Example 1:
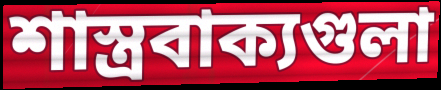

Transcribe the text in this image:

শাস্ত্রবাক্যগুলা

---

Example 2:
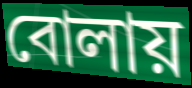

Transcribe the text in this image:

বোলায়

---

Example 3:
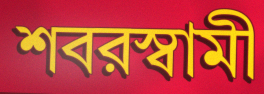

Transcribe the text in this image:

শবরস্বামী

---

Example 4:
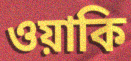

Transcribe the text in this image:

ওয়াকি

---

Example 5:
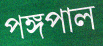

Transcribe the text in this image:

পঙ্গপাল